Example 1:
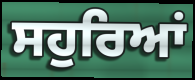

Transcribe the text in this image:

ਸਹੁਰਿਆਂ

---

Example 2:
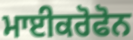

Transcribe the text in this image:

ਮਾਈਕਰੋਫੋਨ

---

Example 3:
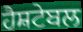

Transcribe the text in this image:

ਹੈਸ਼ਟੇਬਲ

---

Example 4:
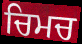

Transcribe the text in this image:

ਚਿਮਚ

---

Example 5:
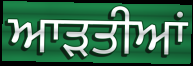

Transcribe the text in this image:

ਆੜਤੀਆਂ